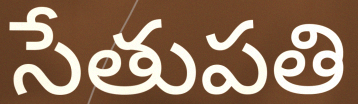
సేతుపతి